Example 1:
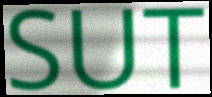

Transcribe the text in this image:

SUT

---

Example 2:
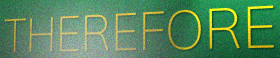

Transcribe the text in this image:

THEREFORE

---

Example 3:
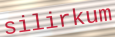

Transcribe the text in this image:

silirkum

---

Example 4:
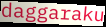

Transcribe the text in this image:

daggaraku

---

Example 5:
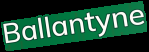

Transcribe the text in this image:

Ballantyne